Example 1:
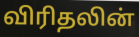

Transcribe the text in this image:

விரிதலின்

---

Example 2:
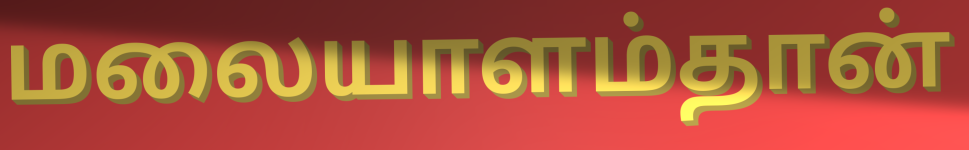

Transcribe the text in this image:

மலையாளம்தான்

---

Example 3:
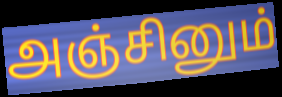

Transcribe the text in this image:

அஞ்சினும்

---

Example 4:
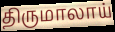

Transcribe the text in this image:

திருமாலாய்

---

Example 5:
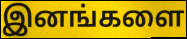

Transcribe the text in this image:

இனங்களை